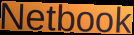
Netbook